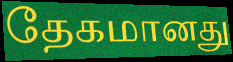
தேகமானது